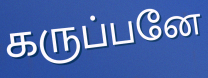
கருப்பனே